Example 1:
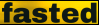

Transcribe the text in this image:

fasted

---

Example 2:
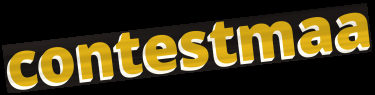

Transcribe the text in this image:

contestmaa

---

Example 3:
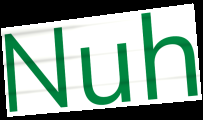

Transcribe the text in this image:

Nuh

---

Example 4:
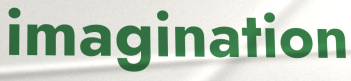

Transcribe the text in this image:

imagination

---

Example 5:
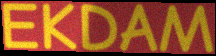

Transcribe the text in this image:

EKDAM